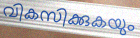
വികസിക്കുകയും